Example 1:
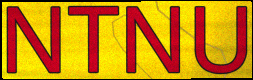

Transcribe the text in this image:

NTNU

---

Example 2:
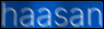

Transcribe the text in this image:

haasan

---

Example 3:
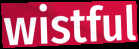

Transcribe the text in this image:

wistful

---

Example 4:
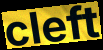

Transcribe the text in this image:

cleft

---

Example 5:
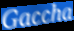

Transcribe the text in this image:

Gaccha